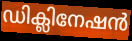
ഡിക്ലിനേഷൻ